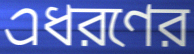
এধরণের